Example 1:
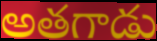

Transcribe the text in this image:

అతగాడు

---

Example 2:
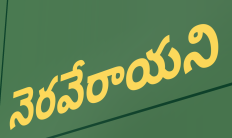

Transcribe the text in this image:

నెరవేరాయని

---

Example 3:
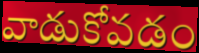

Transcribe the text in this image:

వాడుకోవడం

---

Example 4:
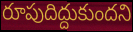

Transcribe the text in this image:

రూపుదిద్దుకుందని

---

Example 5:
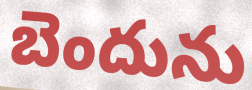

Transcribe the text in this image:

బెందును